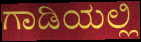
ಗಾಡಿಯಲ್ಲಿ